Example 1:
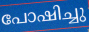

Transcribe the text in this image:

പോഷിച്ചു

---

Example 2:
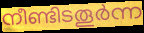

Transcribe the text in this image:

നീണ്ടിടതൂർന്ന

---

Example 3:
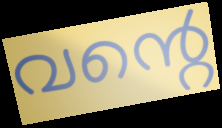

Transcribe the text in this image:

വന്റെ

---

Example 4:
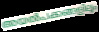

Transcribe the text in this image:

അയൽപക്കങ്ങളിലും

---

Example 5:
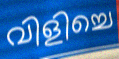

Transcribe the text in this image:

വിളിച്ചെ